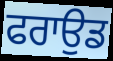
ਫਰਾਉਡ